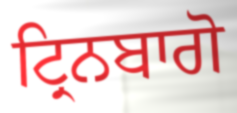
ਟ੍ਰਿਨਬਾਗੋ